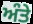
ਅੰਤੇ